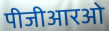
पीजीआरओ